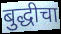
बुद्धीचा